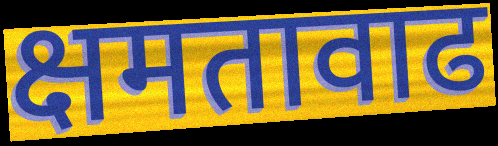
क्षमतावाढ